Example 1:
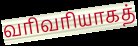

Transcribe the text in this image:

வரிவரியாகத்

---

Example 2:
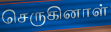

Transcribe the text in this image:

செருகினாள்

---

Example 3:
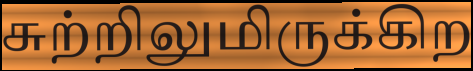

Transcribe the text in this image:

சுற்றிலுமிருக்கிற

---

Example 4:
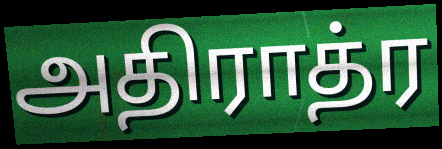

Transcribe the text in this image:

அதிராத்ர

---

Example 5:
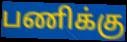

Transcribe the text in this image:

பணிக்கு